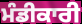
ਮੰਡੀਕਾਰੀ